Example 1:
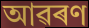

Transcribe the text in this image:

আৱৰণ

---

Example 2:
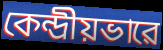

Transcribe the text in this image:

কেন্দ্ৰীয়ভাৱে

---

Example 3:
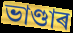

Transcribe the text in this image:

ভাণ্ডাৰ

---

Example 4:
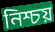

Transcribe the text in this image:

নিশ্চয়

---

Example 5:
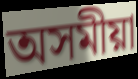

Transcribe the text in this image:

অসমীয়া